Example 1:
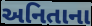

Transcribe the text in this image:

અનિતાના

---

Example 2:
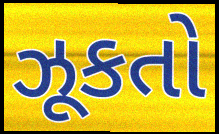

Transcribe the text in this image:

ઝૂકતો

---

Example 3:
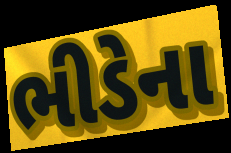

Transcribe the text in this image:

ભીડેના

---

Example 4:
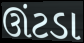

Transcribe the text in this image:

ઊંટડા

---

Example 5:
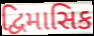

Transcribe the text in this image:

દ્વિમાસિક